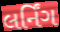
લર્નિંગ